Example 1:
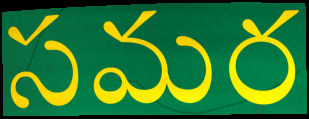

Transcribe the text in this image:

సమర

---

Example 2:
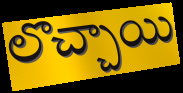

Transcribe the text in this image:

లొచ్చాయి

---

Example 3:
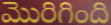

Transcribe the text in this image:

మొరిగింది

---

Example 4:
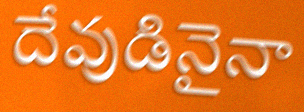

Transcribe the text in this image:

దేవుడినైనా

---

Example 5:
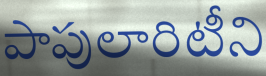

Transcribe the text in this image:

పాపులారిటీని